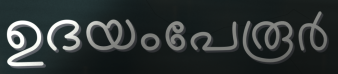
ഉദയംപേരൂർ